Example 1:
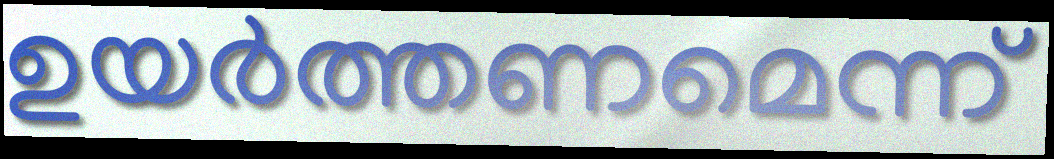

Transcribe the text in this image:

ഉയർത്തണമെന്ന്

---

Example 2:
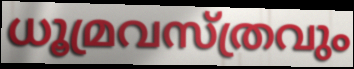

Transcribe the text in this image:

ധൂമ്രവസ്ത്രവും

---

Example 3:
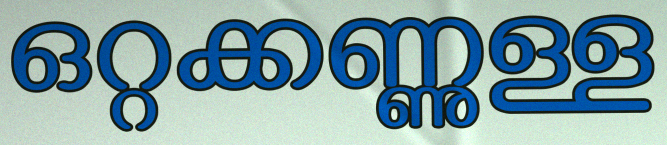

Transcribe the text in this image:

ഒറ്റക്കണ്ണുള്ള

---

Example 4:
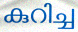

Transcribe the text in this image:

കുറിച്ച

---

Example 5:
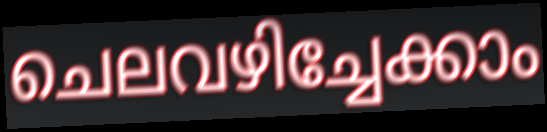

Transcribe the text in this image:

ചെലവഴിച്ചേക്കാം